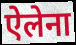
ऐलेना